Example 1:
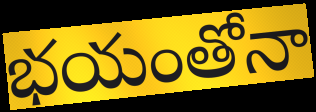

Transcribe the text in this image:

భయంతోనా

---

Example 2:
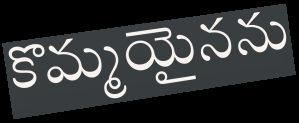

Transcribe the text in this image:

కొమ్మయైనను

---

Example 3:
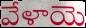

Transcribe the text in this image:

వేళాయె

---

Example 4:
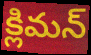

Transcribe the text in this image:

క్లిమన్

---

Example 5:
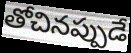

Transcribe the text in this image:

తోచినప్పుడే